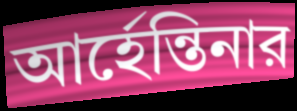
আর্হেন্তিনার